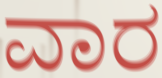
ವಾರ